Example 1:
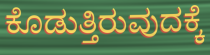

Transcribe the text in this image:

ಕೊಡುತ್ತಿರುವುದಕ್ಕೆ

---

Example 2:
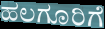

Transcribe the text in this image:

ಹಲಗೂರಿಗೆ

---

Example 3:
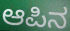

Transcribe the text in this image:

ಆಪಿನ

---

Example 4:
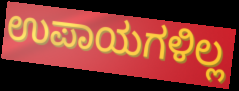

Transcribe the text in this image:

ಉಪಾಯಗಳಿಲ್ಲ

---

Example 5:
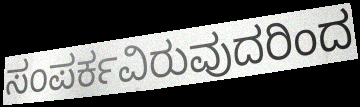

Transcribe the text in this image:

ಸಂಪರ್ಕವಿರುವುದರಿಂದ